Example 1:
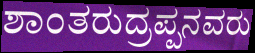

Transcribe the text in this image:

ಶಾಂತರುದ್ರಪ್ಪನವರು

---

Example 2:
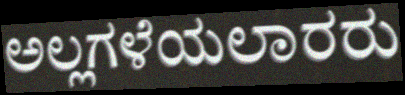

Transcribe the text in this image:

ಅಲ್ಲಗಳೆಯಲಾರರು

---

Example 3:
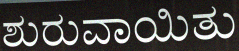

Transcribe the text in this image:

ಶುರುವಾಯಿತು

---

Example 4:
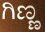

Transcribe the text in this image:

ಗಿಣ್ಣ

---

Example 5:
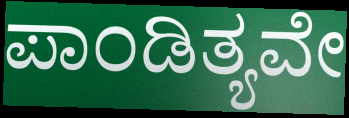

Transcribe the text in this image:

ಪಾಂಡಿತ್ಯವೇ